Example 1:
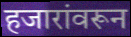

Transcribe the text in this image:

हजारांवरून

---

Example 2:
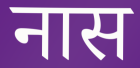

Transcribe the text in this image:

नास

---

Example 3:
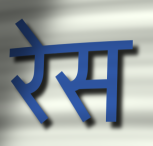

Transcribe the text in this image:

रेस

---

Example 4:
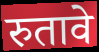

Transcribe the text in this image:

रुतावे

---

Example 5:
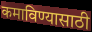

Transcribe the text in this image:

कमाविण्यासाठी